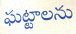
ఘట్టాలను